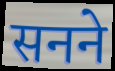
सनने